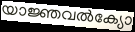
യാജ്ഞവൽക്യോ